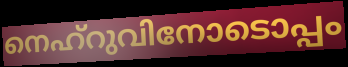
നെഹ്റുവിനോടൊപ്പം